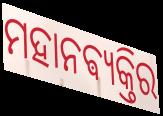
ମହାନଵ୍ୟକ୍ତିର